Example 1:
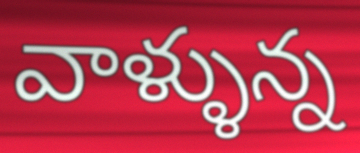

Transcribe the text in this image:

వాళ్ళున్న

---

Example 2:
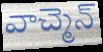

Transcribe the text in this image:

వాచ్మెన్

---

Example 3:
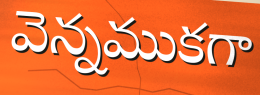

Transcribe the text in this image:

వెన్నముకగా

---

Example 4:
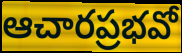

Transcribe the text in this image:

ఆచారప్రభవో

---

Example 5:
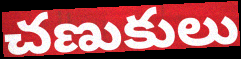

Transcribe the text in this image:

చణుకులు